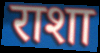
राशा